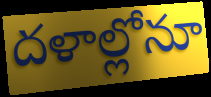
దళాల్లోనూ